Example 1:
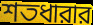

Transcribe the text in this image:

শতধারার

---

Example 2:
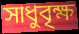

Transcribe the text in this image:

সাধুবৃক্ষ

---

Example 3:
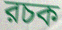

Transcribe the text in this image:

রচক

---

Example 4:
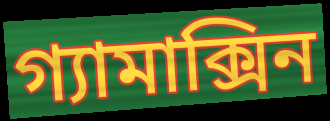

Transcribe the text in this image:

গ্যামাক্সিন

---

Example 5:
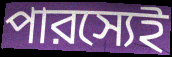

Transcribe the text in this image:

পারস্যেই